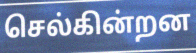
செல்கின்றன